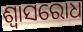
ଶ୍ୱାସରୋଧ